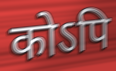
कोऽपि